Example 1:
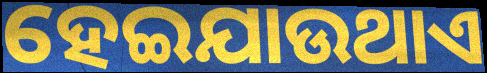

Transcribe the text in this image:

ହେଇଯାଉଥାଏ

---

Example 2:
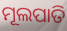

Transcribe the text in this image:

ମୂଲପାତି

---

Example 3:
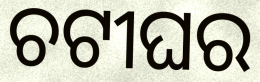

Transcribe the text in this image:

ଚଟୀଘର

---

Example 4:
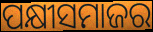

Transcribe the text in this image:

ପକ୍ଷୀସମାଜର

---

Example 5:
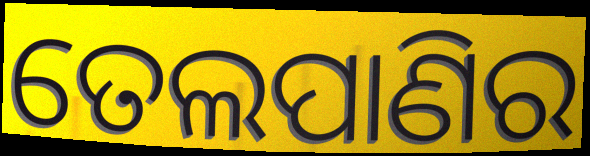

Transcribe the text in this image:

ତେଲପାଣିର